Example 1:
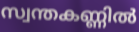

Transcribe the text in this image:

സ്വന്തകണ്ണിൽ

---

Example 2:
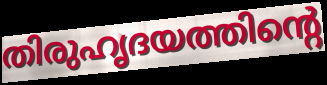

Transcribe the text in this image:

തിരുഹൃദയത്തിന്റെ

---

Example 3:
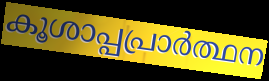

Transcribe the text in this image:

കൂശാപ്പപ്രാർത്ഥന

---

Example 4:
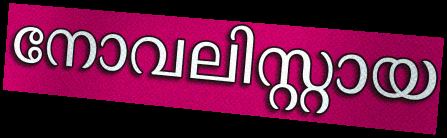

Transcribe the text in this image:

നോവലിസ്റ്റായ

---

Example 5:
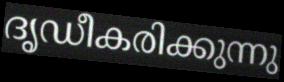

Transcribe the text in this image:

ദൃഡീകരിക്കുന്നു